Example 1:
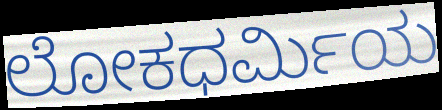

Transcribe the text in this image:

ಲೋಕಧರ್ಮಿಯ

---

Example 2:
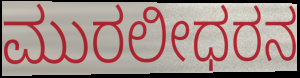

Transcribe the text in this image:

ಮುರಲೀಧರನ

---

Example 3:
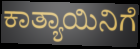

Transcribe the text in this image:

ಕಾತ್ಯಾಯಿನಿಗೆ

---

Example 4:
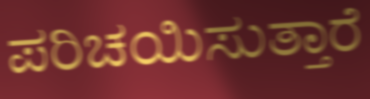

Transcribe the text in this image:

ಪರಿಚಯಿಸುತ್ತಾರೆ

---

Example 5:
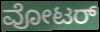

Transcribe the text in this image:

ವೋಟರ್